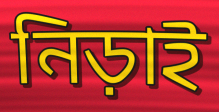
নিড়াই